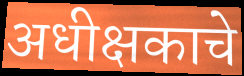
अधीक्षकाचे